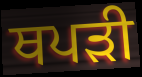
ਥਪੜੀ